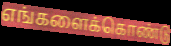
எங்களைக்கொண்டு